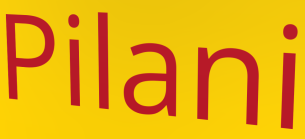
Pilani